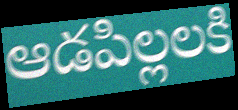
ఆడపిల్లలకి